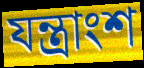
যন্ত্রাংশ